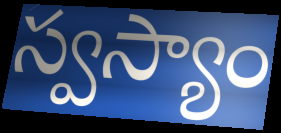
స్వస్యాం